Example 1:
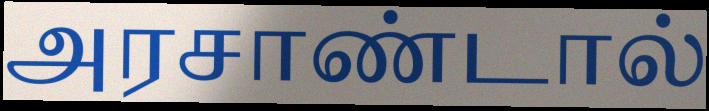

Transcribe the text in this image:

அரசாண்டால்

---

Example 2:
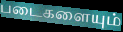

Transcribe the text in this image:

படைகளையும்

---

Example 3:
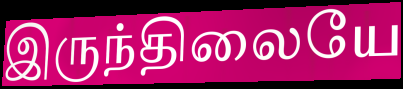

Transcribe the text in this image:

இருந்திலையே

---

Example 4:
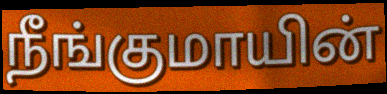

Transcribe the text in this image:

நீங்குமாயின்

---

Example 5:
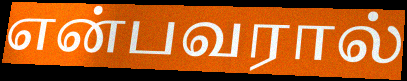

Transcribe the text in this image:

என்பவரால்